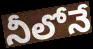
నీలోనే